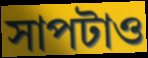
সাপটাও